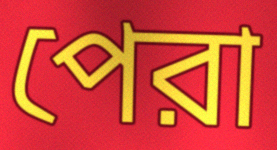
পেরা